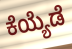
ಕೆಯ್ಯೆಡೆ